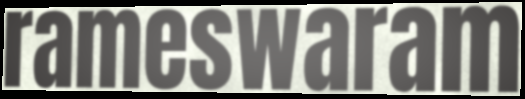
rameswaram